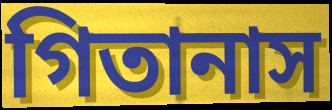
গিতানাস